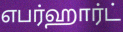
எபர்ஹார்ட்